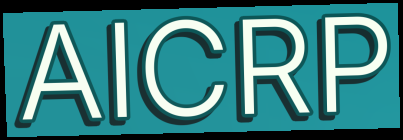
AICRP